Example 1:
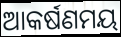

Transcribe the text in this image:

ଆକର୍ଷଣମୟ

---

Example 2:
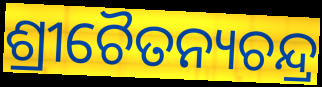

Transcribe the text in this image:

ଶ୍ରୀଚୈତନ୍ୟଚନ୍ଦ୍ର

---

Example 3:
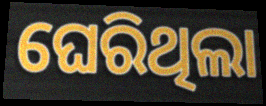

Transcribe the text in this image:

ଘେରିଥିଲା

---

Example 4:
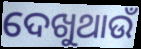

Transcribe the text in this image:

ଦେଖୁଥାଉଁ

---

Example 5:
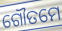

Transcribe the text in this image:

ଗୌତମେ